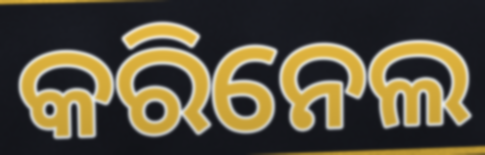
କରିନେଲ